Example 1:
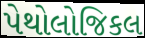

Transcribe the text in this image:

પેથોલોજિકલ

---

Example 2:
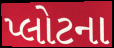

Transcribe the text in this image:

પ્લોટના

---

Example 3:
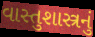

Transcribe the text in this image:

વાસ્તુશાસ્ત્રનું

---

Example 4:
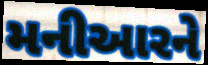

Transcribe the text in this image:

મનીઆરને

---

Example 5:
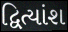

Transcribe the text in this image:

દ્વિત્યાંશ